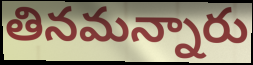
తినమన్నారు